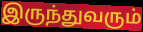
இருந்துவரும்